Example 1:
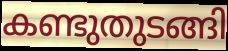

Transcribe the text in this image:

കണ്ടുതുടങ്ങി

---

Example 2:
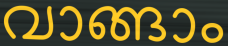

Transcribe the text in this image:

വാങ്ങാം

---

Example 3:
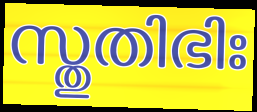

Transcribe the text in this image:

സ്തുതിഭിഃ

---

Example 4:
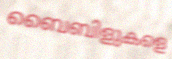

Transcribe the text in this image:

ബൈബിളുകളെ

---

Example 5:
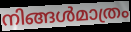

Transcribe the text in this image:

നിങ്ങൾമാത്രം